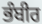
ਭੰਬੀਰ